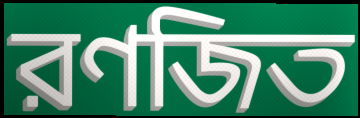
রণজিত